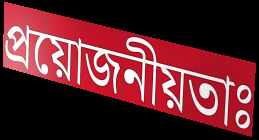
প্ৰয়োজনীয়তাঃ